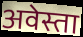
अवेस्ता